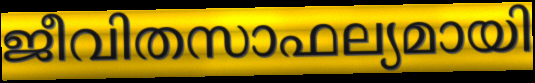
ജീവിതസാഫല്യമായി